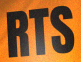
RTS